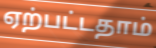
ஏற்பட்டதாம்